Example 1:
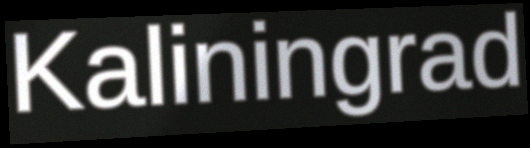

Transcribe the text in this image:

Kaliningrad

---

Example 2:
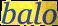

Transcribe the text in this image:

balo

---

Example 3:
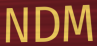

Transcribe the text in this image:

NDM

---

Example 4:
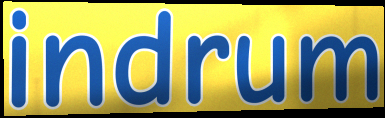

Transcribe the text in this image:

indrum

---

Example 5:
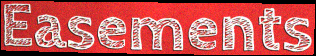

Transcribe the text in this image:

Easements